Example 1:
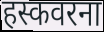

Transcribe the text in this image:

हस्कवरना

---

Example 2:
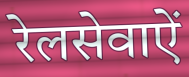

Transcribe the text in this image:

रेलसेवाऐं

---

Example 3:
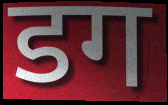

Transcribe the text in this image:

डग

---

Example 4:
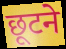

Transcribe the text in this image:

छूटने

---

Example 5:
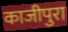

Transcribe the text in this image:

काजीपुरा